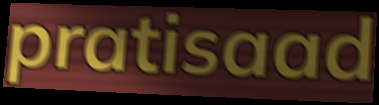
pratisaad